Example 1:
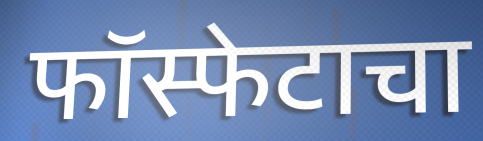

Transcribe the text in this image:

फॉस्फेटाचा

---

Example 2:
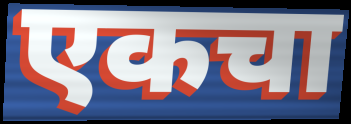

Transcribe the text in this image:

एकचा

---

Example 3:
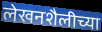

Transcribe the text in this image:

लेखनशैलीच्या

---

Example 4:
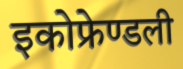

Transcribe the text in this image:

इकोफ्रेण्डली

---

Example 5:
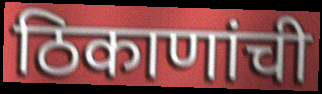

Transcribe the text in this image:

ठिकाणांची